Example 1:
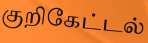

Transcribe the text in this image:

குறிகேட்டல்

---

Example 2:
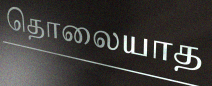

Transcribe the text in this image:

தொலையாத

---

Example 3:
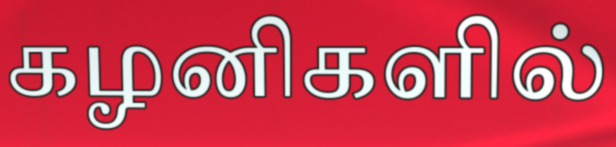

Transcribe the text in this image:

கழனிகளில்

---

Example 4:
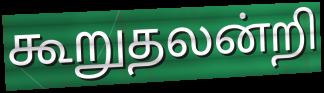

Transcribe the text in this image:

கூறுதலன்றி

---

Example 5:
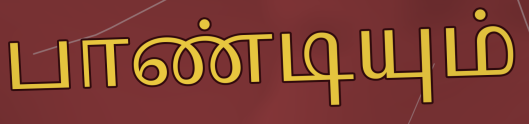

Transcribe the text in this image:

பாண்டியும்